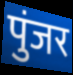
पुंजर